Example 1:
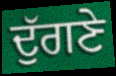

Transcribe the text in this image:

ਦੁੱਗਣੇ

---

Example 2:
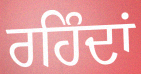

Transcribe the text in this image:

ਰਹਿੰਦਾਂ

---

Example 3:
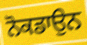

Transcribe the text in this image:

ਨੋਕਡਾਉਨ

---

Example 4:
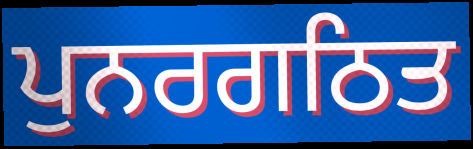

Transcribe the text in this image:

ਪੁਨਰਗਠਿਤ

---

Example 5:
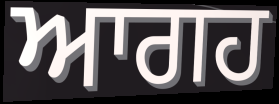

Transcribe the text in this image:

ਆਗਹ